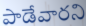
పాడేవారని